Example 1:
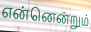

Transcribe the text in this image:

என்னென்றும்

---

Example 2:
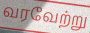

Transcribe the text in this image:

வரவேற்று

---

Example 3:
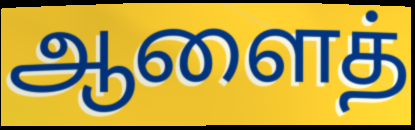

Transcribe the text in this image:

ஆளைத்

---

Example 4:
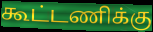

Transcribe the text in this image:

கூட்டணிக்கு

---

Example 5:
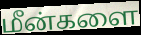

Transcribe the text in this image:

மீன்களை